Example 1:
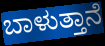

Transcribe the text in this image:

ಬಾಳುತ್ತಾನೆ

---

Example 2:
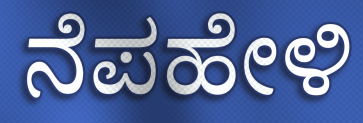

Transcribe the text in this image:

ನೆಪಹೇಳಿ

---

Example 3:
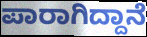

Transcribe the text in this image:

ಪಾರಾಗಿದ್ದಾನೆ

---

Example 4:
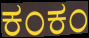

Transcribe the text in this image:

ಕಂಕಂ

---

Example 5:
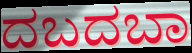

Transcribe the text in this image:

ದಬದಬಾ